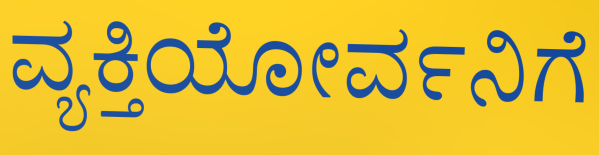
ವ್ಯಕ್ತಿಯೋರ್ವನಿಗೆ